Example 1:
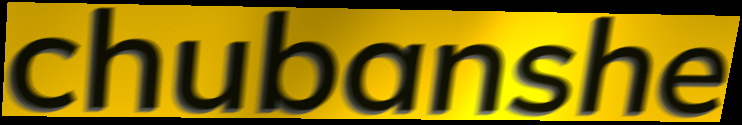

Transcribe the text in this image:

chubanshe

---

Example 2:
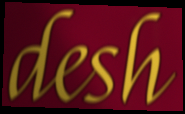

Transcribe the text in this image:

desh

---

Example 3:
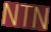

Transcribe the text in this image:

NTN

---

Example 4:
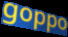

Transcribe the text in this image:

goppo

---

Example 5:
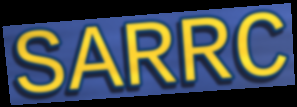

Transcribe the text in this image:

SARRC